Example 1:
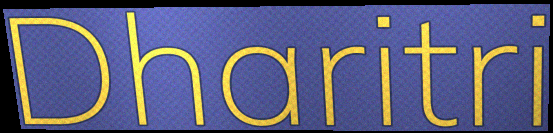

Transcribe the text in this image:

Dharitri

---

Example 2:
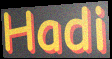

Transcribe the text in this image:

Hadi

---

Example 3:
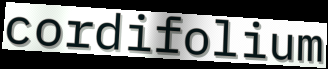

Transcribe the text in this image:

cordifolium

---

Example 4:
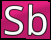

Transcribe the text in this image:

Sb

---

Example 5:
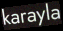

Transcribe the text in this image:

karayla